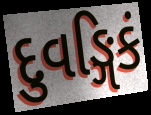
દુવઙ્ગિકં